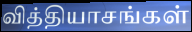
வித்தியாசங்கள்